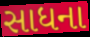
સાધના